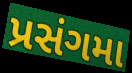
પ્રસંગમા